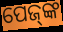
ପେଜ୍‌ଙ୍କ